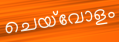
ചെയ്‌വോളം